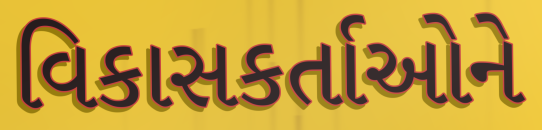
વિકાસકર્તાઓને